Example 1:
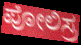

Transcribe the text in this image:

ಪೋಲಿಸ್ರ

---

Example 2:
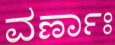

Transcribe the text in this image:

ವರ್ಣಾಃ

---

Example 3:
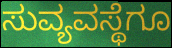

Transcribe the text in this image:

ಸುವ್ಯವಸ್ಥೆಗೂ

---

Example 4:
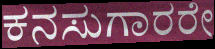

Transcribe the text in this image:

ಕನಸುಗಾರರೇ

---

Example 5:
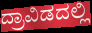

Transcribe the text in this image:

ದ್ರಾವಿಡದಲ್ಲಿ